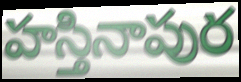
హస్తినాపుర